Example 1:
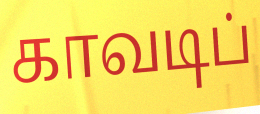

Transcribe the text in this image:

காவடிப்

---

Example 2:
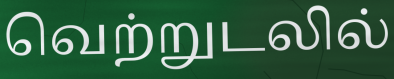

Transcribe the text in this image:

வெற்றுடலில்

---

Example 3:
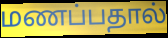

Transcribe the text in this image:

மணப்பதால்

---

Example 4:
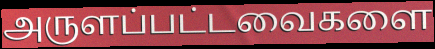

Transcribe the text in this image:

அருளப்பட்டவைகளை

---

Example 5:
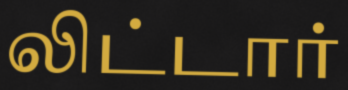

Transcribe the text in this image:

லிட்டார்